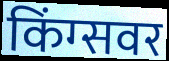
किंग्सवर